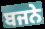
ਬਜਨੇ